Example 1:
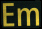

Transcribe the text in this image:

Em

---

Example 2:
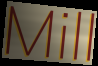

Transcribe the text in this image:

Mill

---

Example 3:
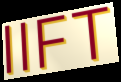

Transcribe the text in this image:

IIFT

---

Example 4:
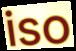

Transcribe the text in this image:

iso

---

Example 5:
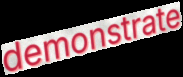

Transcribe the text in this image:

demonstrate